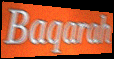
Baqarah